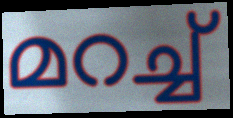
മറച്ച്